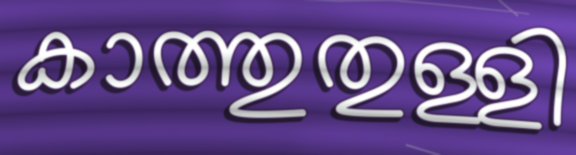
കാത്തുതുള്ളി